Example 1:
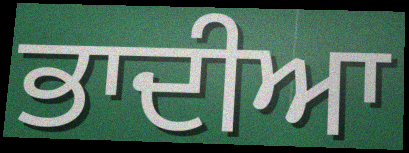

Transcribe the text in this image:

ਭਾਦੀਆ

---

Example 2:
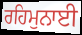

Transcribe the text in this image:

ਰਹਿਮੁਨਾਈ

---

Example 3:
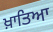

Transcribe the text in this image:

ਖ਼ਾਤਿਆ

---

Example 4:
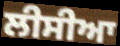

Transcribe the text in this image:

ਲੀਸੀਆ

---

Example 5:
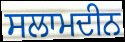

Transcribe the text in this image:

ਸਲਾਮਦੀਨ